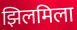
झिलमिला